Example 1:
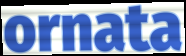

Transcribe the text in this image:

ornata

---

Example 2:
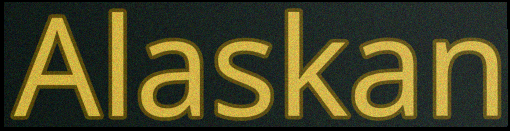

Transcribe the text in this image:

Alaskan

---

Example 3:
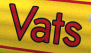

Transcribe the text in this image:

Vats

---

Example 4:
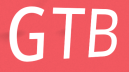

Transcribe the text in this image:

GTB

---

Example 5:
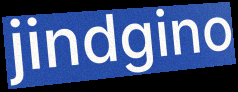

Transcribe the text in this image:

jindgino